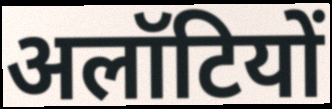
अलॉटियों